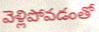
వెళ్లిపోవడంతో